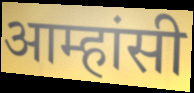
आम्हांसी